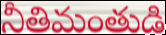
నీతిమంతుడి